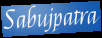
Sabujpatra